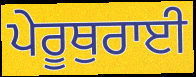
ਪੇਰੂਥੁਰਾਈ